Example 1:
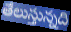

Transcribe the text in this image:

తేలుస్తున్నది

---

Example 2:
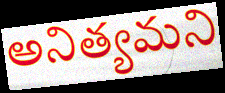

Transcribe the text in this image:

అనిత్యమని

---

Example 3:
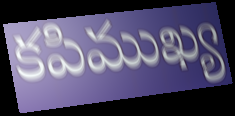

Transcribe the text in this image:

కపిముఖ్య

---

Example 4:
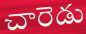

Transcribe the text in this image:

చారెడు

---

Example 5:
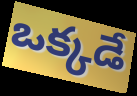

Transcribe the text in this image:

ఒక్కడే